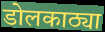
डोलकाठ्या